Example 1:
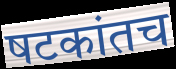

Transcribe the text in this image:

षटकांतच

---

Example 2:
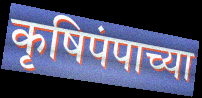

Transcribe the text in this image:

कृषिपंपाच्या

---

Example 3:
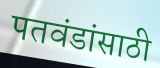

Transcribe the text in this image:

पतवंडांसाठी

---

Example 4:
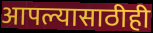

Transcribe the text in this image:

आपल्यासाठीही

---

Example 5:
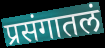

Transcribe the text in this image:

प्रसंगातलं